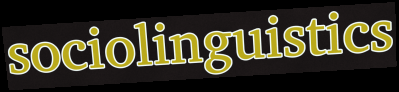
sociolinguistics